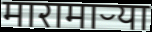
मारामाऱ्या